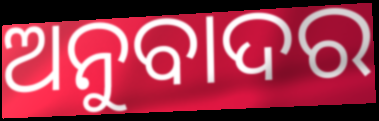
ଅନୁବାଦର